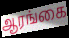
ஆரங்கை